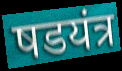
षडयंत्र